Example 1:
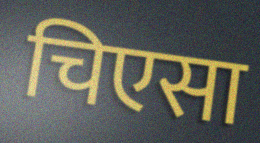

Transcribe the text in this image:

चिएसा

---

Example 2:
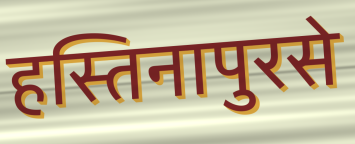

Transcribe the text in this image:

हस्तिनापुरसे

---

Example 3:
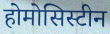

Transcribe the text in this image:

होमोसिस्टीन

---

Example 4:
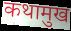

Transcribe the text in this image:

कथामुख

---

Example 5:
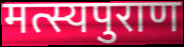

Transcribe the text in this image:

मत्स्यपुराण